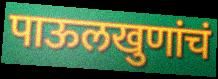
पाऊलखुणांचं